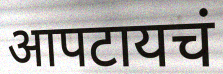
आपटायचं